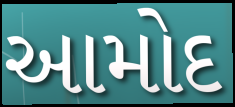
આમોદ